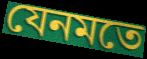
যেনমতে